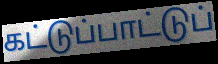
கட்டுப்பாட்டுப்